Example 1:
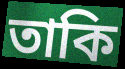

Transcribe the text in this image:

তাকি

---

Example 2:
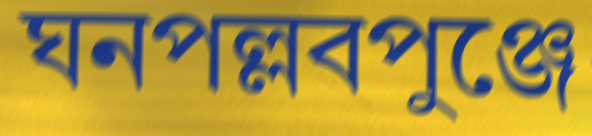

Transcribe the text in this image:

ঘনপল্লবপুঞ্জে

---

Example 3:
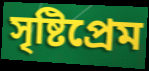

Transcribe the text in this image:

সৃষ্টিপ্রেম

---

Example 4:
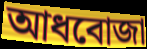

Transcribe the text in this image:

আধবোজা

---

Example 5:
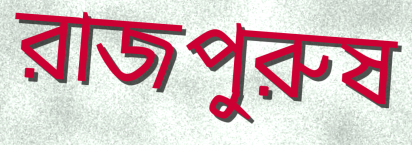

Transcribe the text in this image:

রাজপুরুষ